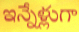
ఇన్నేళ్లుగా